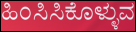
ಹಿಂಸಿಸಿಕೊಳ್ಳುವ